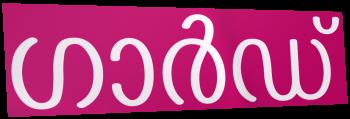
ഗാർഡ്